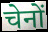
चेनों